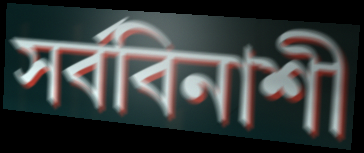
সর্ববিনাশী